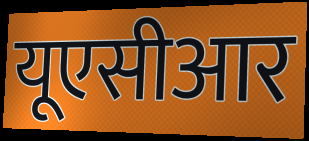
यूएसीआर